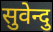
सुवेन्दु